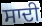
ਸਾਦੀ